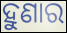
ହୁଣାର